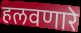
हलवणारे